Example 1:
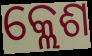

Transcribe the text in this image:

କ୍ଲେଶ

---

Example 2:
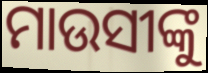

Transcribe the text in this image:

ମାଉସୀଙ୍କୁ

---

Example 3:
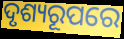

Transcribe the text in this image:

ଦୃଶ୍ୟରୂପରେ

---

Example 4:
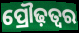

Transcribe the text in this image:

ପ୍ରୌଢ଼ତ୍ୱର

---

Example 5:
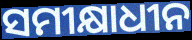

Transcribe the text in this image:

ସମୀକ୍ଷାଧୀନ